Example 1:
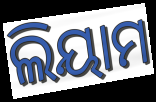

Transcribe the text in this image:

ଲିୟାମ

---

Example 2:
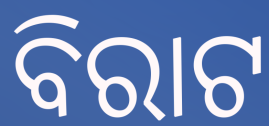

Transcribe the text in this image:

ବିରାଟ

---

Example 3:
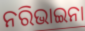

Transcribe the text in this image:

ନରିଭାଇନା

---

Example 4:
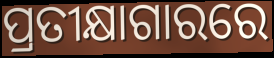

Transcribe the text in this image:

ପ୍ରତୀକ୍ଷାଗାରରେ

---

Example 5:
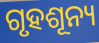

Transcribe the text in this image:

ଗୃହଶୂନ୍ୟ